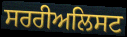
ਸਰਰੀਅਲਿਸਟ